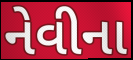
નેવીના